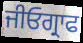
ਜੀਓਗ੍ਰਾਫ